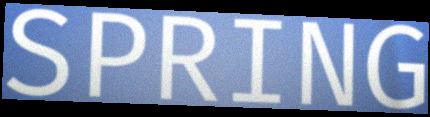
SPRING